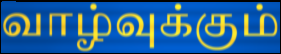
வாழ்வுக்கும்